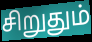
சிறுதும்